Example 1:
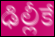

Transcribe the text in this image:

ఢిల్లీకే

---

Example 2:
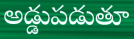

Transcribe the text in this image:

అడ్డుపడుతూ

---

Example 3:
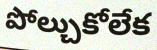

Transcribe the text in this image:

పోల్చుకోలేక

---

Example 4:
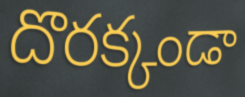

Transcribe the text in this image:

దొరక్కండా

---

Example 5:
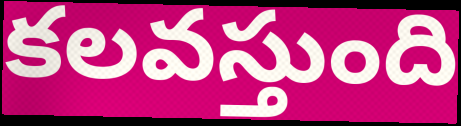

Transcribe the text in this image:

కలవస్తుంది